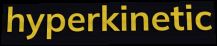
hyperkinetic